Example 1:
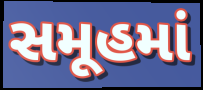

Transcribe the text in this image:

સમૂહમાં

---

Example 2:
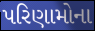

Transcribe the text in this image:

પરિણામોના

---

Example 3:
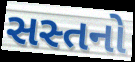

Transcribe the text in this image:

સસ્તનો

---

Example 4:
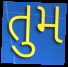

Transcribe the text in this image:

તુમ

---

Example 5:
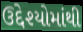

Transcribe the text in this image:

ઉદ્દેશ્યોમાંથી